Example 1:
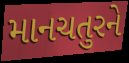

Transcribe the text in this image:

માનચતુરને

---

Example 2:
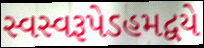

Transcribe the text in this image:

સ્વસ્વરૂપેઽહમદ્વયે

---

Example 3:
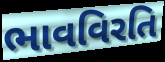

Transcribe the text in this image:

ભાવવિરતિ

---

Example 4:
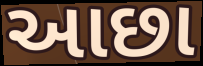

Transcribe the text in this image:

આછા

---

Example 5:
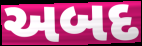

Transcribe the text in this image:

અબદ